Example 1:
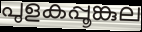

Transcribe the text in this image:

പുളകപ്പൂങ്കുല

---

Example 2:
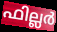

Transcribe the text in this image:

ഫില്ലർ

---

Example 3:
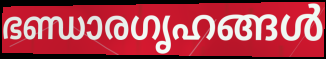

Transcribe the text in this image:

ഭണ്ഡാരഗൃഹങ്ങൾ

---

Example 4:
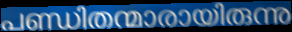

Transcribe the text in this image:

പണ്ഡിതന്മാരായിരുന്നു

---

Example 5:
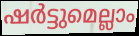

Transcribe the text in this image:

ഷർട്ടുമെല്ലാം